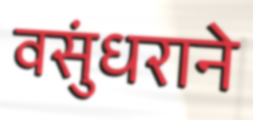
वसुंधराने